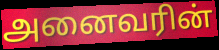
அனைவரின்